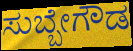
ಸುಬ್ಬೇಗೌಡ